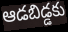
ఆడబిడ్డకు